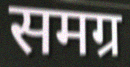
समग्र